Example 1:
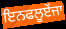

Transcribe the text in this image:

ਇਨਫਲੂਏਂਜਾ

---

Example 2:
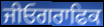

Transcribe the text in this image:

ਜੀਓਗਰਾਫਿਕ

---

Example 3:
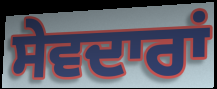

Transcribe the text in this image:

ਸੇਵਦਾਰਾਂ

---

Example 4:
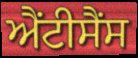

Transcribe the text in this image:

ਐਂਟੀਸੈਂਸ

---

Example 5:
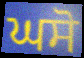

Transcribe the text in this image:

ਘਸੋ